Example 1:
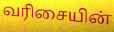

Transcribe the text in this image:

வரிசையின்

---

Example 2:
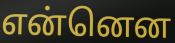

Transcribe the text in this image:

என்னென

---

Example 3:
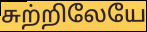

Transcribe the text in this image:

சுற்றிலேயே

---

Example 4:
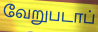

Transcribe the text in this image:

வேறுபடாப்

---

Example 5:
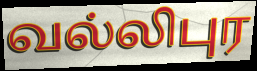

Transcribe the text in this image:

வல்லிபுர